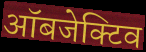
ऑबजेक्टिव